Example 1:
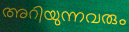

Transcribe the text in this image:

അറിയുന്നവരും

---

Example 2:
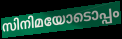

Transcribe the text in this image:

സിനിമയോടൊപ്പം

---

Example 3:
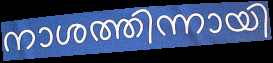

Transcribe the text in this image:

നാശത്തിന്നായി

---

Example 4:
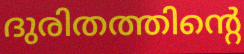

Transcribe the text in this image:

ദുരിതത്തിന്റെ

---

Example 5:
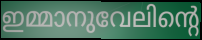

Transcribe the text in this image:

ഇമ്മാനുവേലിന്റെ